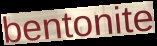
bentonite